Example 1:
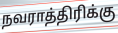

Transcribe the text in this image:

நவராத்திரிக்கு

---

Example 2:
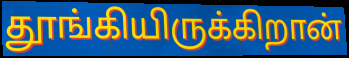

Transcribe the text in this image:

தூங்கியிருக்கிறான்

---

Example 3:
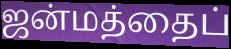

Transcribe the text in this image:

ஜன்மத்தைப்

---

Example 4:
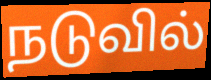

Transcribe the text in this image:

நடுவில்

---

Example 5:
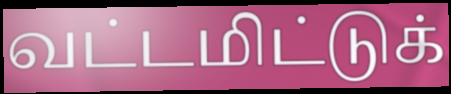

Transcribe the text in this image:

வட்டமிட்டுக்